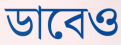
ডাবেও